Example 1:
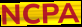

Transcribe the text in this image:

NCPA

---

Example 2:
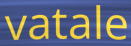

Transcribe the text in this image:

vatale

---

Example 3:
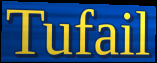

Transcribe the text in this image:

Tufail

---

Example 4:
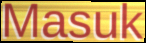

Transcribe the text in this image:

Masuk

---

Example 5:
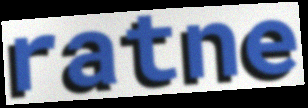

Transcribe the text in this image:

ratne